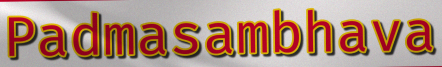
Padmasambhava